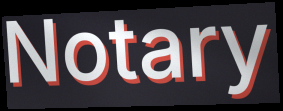
Notary